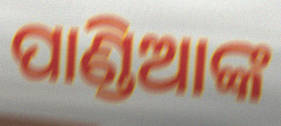
ପାଣ୍ଡିଆଙ୍କ